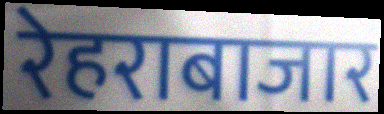
रेहराबाजार